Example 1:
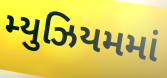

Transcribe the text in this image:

મ્યુઝિયમમાં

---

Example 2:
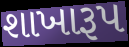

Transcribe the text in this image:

શાખારૂપ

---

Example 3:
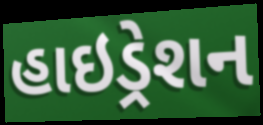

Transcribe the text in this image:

હાઇડ્રેશન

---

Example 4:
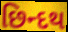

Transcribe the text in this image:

છિન્દથ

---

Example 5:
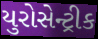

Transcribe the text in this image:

યુરોસેન્ટ્રીક